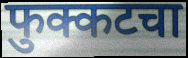
फुक्कटचा